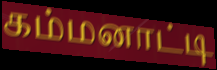
கம்மனாட்டி